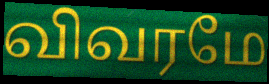
விவரமே